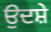
ਉਦਸ਼ੇ